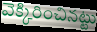
వెక్కిరించినట్టు